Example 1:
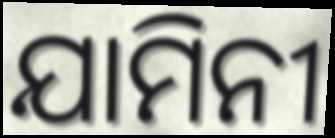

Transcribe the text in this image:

ଯାମିନୀ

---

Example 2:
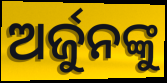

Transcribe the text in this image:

ଅର୍ଜୁନଙ୍କୁ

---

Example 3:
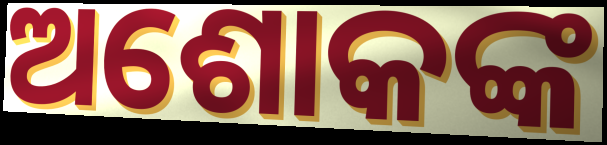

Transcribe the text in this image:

ଅଶୋକଙ୍କ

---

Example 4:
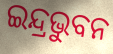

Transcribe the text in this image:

ଇନ୍ଦ୍ରଭୁବନ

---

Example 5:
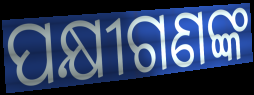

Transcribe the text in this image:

ପକ୍ଷୀଗଣଙ୍କ